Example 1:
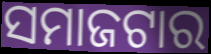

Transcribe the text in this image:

ସମାଜଟାର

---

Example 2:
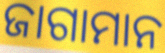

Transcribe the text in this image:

ଜାଗାମାନ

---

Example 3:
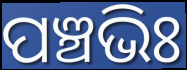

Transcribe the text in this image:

ପଞ୍ଚଭିଃ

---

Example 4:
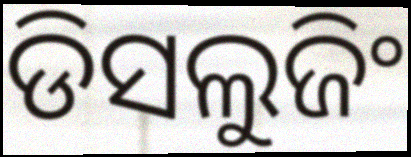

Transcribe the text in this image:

ଡିସଲୁଜିଂ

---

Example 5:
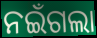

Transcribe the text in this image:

ନଇଁଗଲା